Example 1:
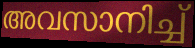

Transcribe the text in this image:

അവസാനിച്ച്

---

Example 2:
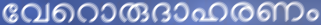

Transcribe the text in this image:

വേറൊരുദാഹരണം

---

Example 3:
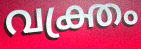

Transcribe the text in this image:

വക്ത്രം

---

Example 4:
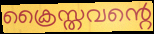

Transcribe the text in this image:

ക്രൈസ്തവന്റെ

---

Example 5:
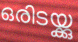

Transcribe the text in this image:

ഒരിടയ്ക്കു